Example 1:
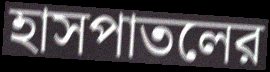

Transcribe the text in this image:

হাসপাতলের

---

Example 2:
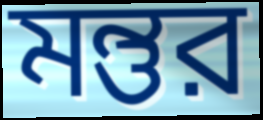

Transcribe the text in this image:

মন্তুর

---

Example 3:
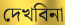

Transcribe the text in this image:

দেখবিনা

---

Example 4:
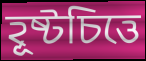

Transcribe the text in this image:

হূষ্টচিত্তে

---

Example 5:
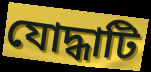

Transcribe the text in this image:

যোদ্ধাটি